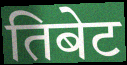
तिबेट